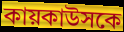
কায়কাউসকে